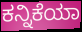
ಕನ್ನಿಕೆಯಾ